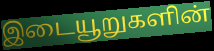
இடையூறுகளின்